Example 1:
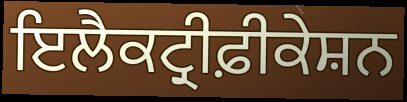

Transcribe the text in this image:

ਇਲੈਕਟ੍ਰੀਫ਼ੀਕੇਸ਼ਨ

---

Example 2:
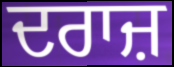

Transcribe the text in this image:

ਦਰਾਜ਼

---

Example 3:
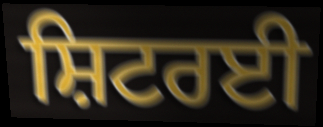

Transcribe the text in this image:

ਸ਼ਿਟਰਈ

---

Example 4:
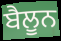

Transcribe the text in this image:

ਬੈਲੂਨ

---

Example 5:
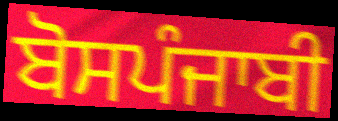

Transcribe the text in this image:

ਬੋਸਪੰਜਾਬੀ